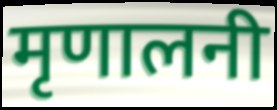
मृणालनी